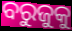
ବରୁଜୁକୁ